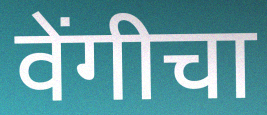
वेंगीचा